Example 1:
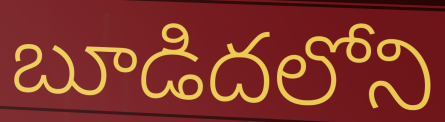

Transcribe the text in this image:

బూడిదలోని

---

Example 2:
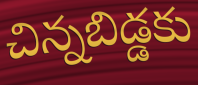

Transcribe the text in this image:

చిన్నబిడ్డకు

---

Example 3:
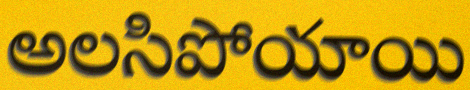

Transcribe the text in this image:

అలసిపోయాయి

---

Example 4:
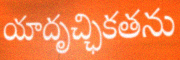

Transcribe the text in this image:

యాదృచ్ఛికతను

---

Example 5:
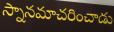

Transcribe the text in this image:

స్నానమాచరించాడు